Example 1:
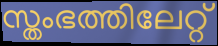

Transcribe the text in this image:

സ്തംഭത്തിലേറ്റ്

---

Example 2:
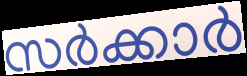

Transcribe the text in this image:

സർക്കാർ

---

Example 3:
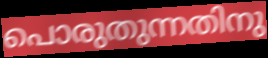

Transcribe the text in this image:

പൊരുതുന്നതിനു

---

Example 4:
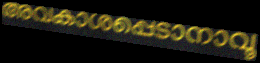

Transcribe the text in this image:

അവകാശപ്പെടാനാവൂ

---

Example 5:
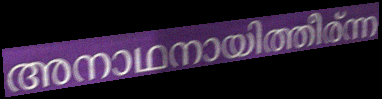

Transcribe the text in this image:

അനാഥനായിത്തീര്ന്ന